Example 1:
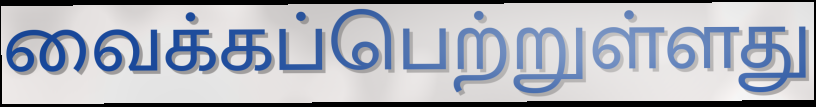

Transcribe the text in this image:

வைக்கப்பெற்றுள்ளது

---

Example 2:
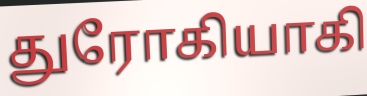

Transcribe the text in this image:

துரோகியாகி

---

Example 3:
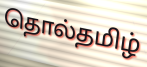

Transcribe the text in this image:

தொல்தமிழ்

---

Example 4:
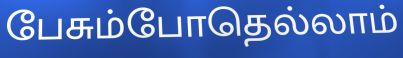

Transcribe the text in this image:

பேசும்போதெல்லாம்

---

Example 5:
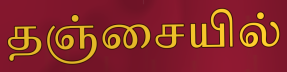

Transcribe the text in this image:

தஞ்சையில்